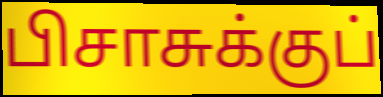
பிசாசுக்குப்